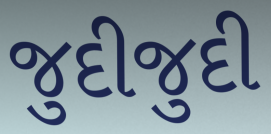
જુદીજુદી